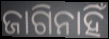
ଜାଗିନାହିଁ